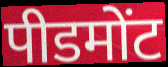
पीडमोंट